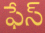
ఫేస్